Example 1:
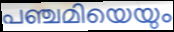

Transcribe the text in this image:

പഞ്ചമിയെയും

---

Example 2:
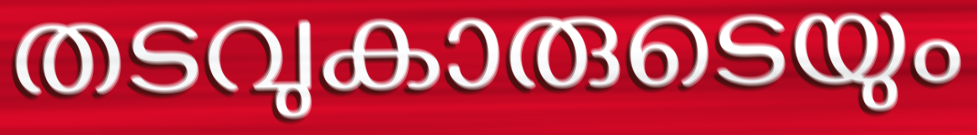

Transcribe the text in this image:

തടവുകാരുടെയും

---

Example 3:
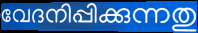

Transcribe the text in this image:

വേദനിപ്പിക്കുന്നതു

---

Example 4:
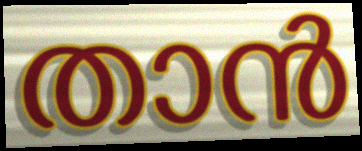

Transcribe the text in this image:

താൻ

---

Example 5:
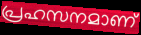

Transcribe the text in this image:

പ്രഹസനമാണ്